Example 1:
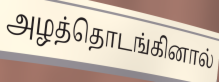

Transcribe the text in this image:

அழத்தொடங்கினால்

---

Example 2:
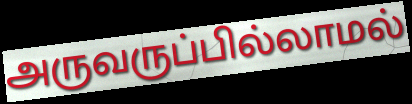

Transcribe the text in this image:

அருவருப்பில்லாமல்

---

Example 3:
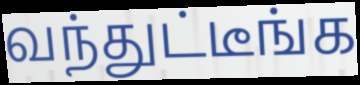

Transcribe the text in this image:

வந்துட்டீங்க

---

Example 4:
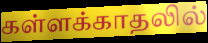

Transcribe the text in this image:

கள்ளக்காதலில்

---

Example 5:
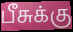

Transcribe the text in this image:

பீசுக்கு